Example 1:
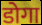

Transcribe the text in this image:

डोगा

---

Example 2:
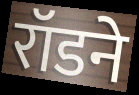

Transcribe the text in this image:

रॉडने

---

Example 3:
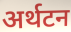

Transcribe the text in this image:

अर्थटन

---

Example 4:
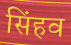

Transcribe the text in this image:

सिंहव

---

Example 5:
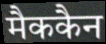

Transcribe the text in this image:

मैककैन